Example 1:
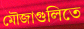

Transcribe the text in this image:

মৌজাগুলিতে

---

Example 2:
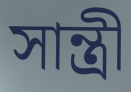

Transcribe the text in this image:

সান্ত্রী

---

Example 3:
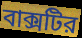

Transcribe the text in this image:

বাক্সটির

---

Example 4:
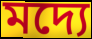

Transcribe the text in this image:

মদ্যে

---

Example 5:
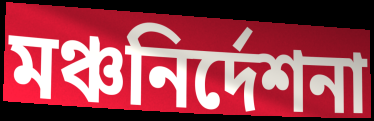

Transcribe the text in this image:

মঞ্চনির্দেশনা